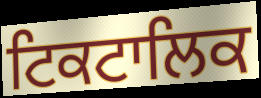
ਟਿਕਟਾਲਿਕ